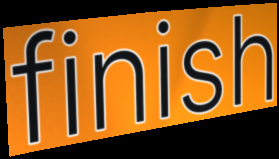
finish